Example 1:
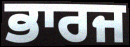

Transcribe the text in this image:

ਭਾਰਜ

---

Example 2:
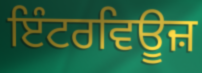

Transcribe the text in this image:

ਇੰਟਰਵਿਊਜ਼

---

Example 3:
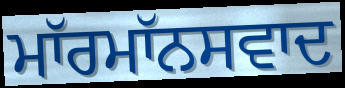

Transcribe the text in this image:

ਮਾੱਰਮਾੱਨਸਵਾਦ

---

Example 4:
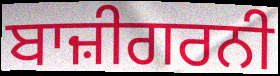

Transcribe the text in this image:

ਬਾਜ਼ੀਗਰਨੀ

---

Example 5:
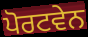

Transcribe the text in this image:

ਪੋਰਟਵੇਨ